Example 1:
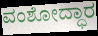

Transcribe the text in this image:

ವಂಶೋದ್ಧಾರ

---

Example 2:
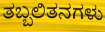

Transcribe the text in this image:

ತಬ್ಬಲಿತನಗಳು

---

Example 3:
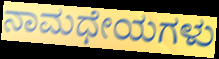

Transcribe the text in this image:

ನಾಮಧೇಯಗಳು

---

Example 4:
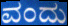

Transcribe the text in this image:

ವಂದು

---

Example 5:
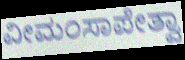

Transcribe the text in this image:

ವೀಮಂಸಾಪೇತ್ವಾ